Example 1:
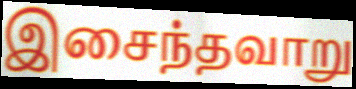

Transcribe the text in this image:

இசைந்தவாறு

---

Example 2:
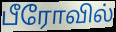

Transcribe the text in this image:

பீரோவில்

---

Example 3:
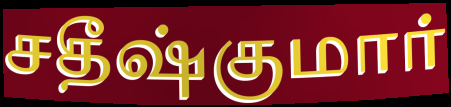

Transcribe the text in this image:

சதீஷ்குமார்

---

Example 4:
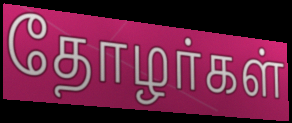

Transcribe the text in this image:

தோழர்கள்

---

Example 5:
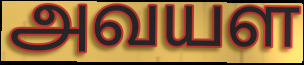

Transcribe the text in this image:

அவயள